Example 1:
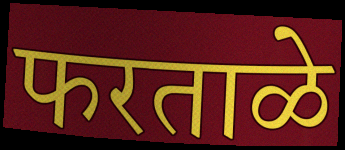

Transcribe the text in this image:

फरताळे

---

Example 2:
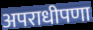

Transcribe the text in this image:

अपराधीपणा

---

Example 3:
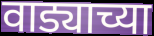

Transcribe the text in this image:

वाड्याच्या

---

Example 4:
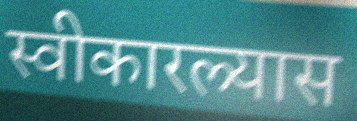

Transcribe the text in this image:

स्वीकारल्यास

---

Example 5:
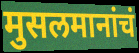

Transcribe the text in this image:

मुसलमानांचं